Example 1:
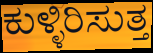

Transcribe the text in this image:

ಕುಳ್ಳಿರಿಸುತ್ತ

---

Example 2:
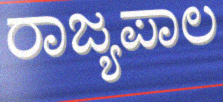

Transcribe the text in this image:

ರಾಜ್ಯಪಾಲ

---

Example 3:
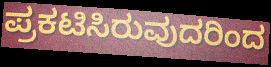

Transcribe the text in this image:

ಪ್ರಕಟಿಸಿರುವುದರಿಂದ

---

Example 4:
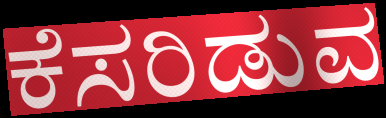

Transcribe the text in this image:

ಕೆಸರಿಡುವ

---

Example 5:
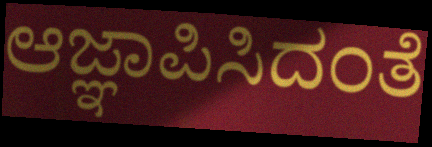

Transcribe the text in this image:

ಆಜ್ಞಾಪಿಸಿದಂತೆ